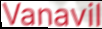
Vanavil